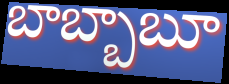
బాబ్బాబూ